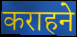
कराहने